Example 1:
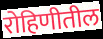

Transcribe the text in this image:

रोहिणीतील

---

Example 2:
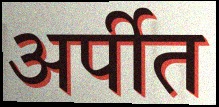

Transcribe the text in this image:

अर्पीत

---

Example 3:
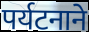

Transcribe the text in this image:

पर्यटनाने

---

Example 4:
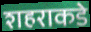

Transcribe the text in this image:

शहराकडे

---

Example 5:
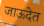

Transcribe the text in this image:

जाऊदेत